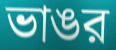
ভাঙর